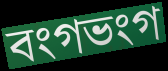
বংগভংগ